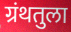
ग्रंथतुला